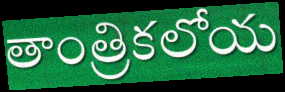
తాంత్రికలోయ